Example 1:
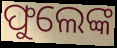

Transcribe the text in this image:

ଫୁଲେଙ୍କ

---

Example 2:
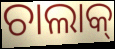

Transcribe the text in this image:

ଚାଲାକ୍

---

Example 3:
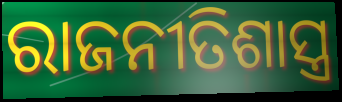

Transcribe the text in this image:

ରାଜନୀତିଶାସ୍ତ୍ର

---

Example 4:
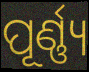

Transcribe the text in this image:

ପୂର୍ଣ୍ଣ୍ୟ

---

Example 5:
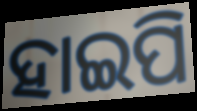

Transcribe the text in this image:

ହାଇପି